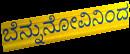
ಬೆನ್ನುನೋವಿನಿಂದ